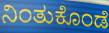
ನಿಂತುಕೊಂಡೆ